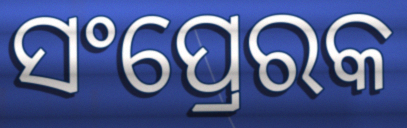
ସଂପ୍ରେରକ